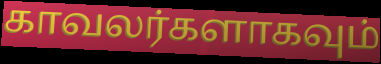
காவலர்களாகவும்